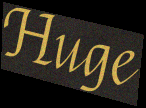
Huge